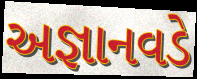
અજ્ઞાનવડે